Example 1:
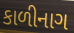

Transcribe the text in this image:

કાળીનાગ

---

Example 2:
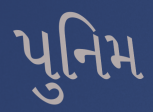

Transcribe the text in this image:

પુનિમ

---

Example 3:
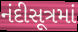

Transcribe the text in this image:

નંદીસૂત્રમાં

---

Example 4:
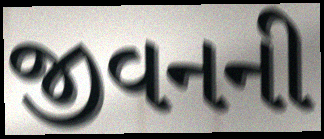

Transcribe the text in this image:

જીવનની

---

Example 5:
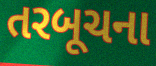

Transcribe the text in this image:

તરબૂચના